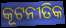
କୂଟନୀତିକ